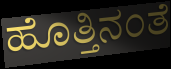
ಹೊತ್ತಿನಂತೆ